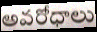
అవరోధాలు